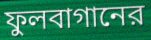
ফুলবাগানের